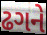
ઢગને